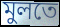
মুলতে